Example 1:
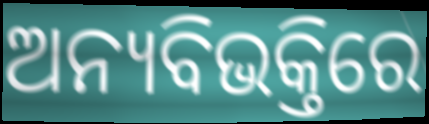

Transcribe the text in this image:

ଅନ୍ୟବିଭକ୍ତିରେ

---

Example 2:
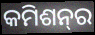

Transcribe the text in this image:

କମିଶନ୍‌ର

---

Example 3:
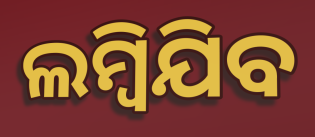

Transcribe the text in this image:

ଲମ୍ୱିଯିବ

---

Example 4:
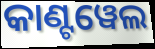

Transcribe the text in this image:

କାଣ୍ଟୱେଲ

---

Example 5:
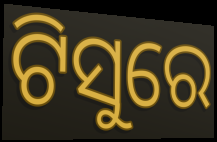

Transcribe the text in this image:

ଟିସୁରେ